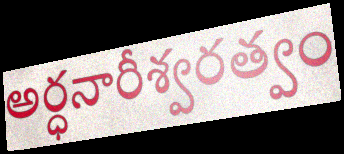
అర్ధనారీశ్వరత్వం